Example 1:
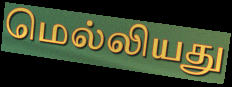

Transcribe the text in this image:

மெல்லியது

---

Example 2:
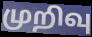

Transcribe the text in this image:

முறிவு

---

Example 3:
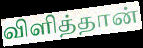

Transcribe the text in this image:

விளித்தான்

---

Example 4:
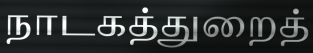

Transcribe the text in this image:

நாடகத்துறைத்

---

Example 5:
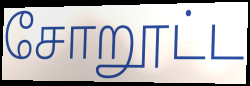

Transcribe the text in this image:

சோறூட்ட